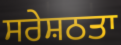
ਸਰੇਸ਼ਠਤਾ